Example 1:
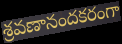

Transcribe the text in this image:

శ్రవణానందకరంగా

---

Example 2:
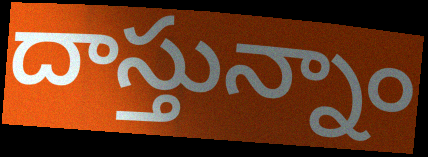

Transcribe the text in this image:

దాస్తున్నాం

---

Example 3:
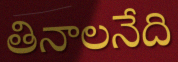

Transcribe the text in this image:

తినాలనేది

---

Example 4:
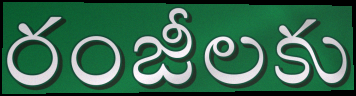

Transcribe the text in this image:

రంజీలకు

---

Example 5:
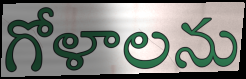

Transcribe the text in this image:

గోళాలను